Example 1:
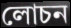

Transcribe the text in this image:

লোচন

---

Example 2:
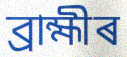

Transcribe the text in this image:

ব্ৰাহ্মীৰ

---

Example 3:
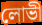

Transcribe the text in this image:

লোভী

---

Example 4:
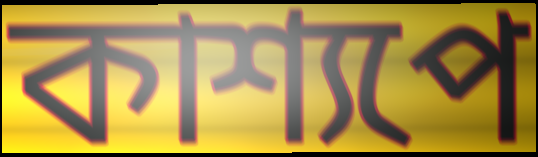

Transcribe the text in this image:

কাশ্যপে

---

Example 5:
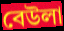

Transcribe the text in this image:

বেউলা